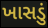
ખાસડું